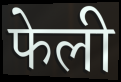
फेली